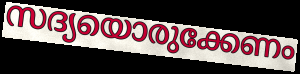
സദ്യയൊരുക്കേണം